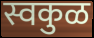
स्वकुळ